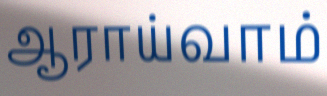
ஆராய்வாம்